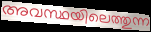
അവസ്ഥയിലെത്തുന്ന